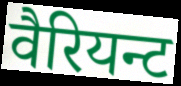
वैरियन्ट